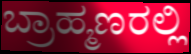
ಬ್ರಾಹ್ಮಣರಲ್ಲಿ